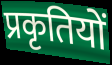
प्रकृतियों